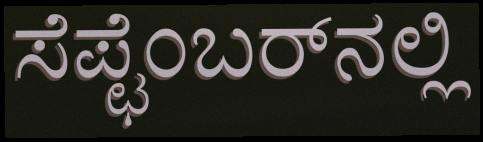
ಸೆಪ್ಟೆಂಬರ್‌ನಲ್ಲಿ